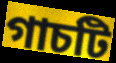
গাচটি